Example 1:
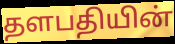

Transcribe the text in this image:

தளபதியின்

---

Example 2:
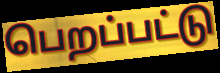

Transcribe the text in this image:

பெறப்பட்டு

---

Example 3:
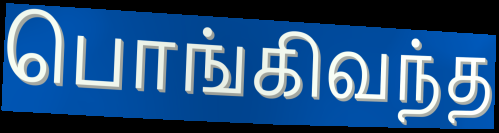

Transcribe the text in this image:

பொங்கிவந்த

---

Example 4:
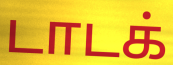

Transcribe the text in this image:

டாடக்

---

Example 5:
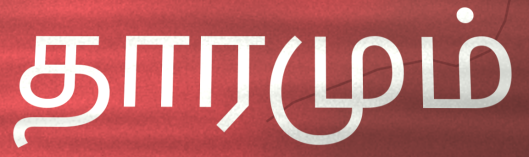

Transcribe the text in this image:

தாரமும்